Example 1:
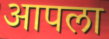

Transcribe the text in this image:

आपला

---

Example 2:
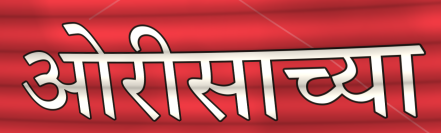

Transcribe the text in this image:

ओरीसाच्या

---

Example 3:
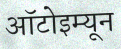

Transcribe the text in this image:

ऑटोइम्यून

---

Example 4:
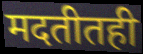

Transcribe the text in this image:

मदतीतही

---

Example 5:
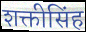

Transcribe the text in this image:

शक्तीसिंह